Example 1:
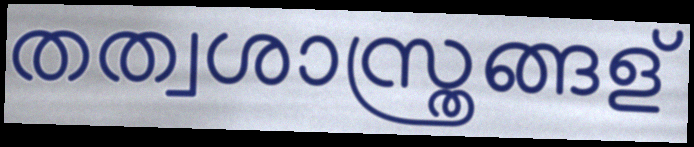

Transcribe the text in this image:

തത്വശാസ്ത്രങ്ങള്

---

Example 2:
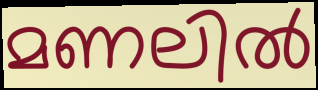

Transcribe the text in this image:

മണലിൽ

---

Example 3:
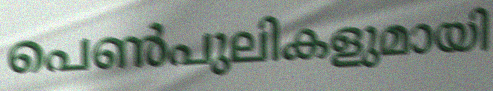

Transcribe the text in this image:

പെൺപുലികളുമായി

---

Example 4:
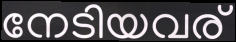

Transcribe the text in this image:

നേടിയവര്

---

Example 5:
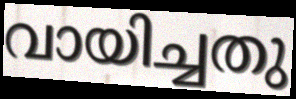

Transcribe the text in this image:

വായിച്ചതു